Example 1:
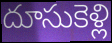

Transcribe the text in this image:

దూసుకెళ్లి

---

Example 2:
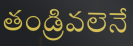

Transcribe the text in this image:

తండ్రివలెనే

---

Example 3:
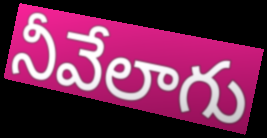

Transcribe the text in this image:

నీవేలాగు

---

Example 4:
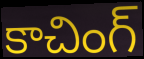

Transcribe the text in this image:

కాచింగ్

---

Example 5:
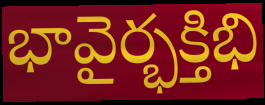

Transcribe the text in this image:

భావైర్భక్తిభి